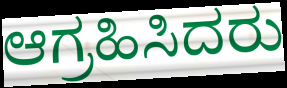
ಆಗ್ರಹಿಸಿದರು